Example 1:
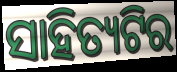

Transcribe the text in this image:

ସାହିତ୍ୟଟିର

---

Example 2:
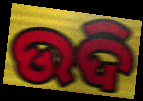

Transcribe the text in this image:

ଉଦି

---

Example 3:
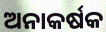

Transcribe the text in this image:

ଅନାକର୍ଷକ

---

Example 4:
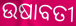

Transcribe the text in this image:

ଉଷାବତୀ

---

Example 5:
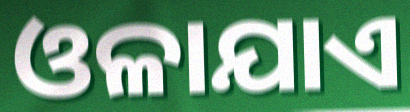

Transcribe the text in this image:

ଓଳାଯାଏ